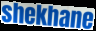
shekhane